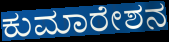
ಕುಮಾರೇಶನ